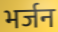
भर्जन